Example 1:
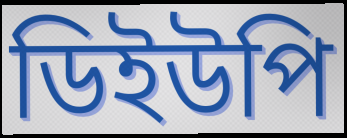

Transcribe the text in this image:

ডিইউপি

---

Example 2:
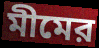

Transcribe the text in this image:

মীমের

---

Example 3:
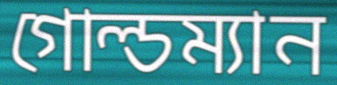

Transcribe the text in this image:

গোল্ডম্যান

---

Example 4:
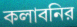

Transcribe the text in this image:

কলাবনির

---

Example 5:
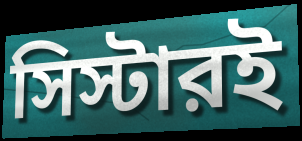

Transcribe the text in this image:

সিস্টারই